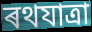
ৰথযাত্ৰা